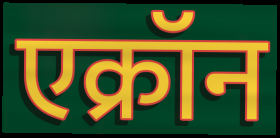
एक्रॉन